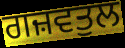
ਗਜ਼ਵਤੁਲ